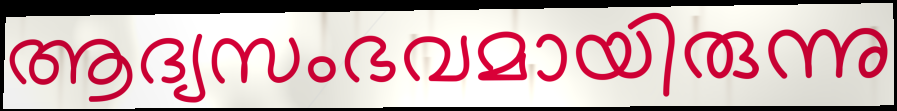
ആദ്യസംഭവമായിരുന്നു